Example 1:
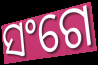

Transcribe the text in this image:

ସଂଗେ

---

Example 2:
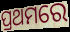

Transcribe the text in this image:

ପ୍ରଥମରେ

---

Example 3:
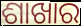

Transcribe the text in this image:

ଶାଖାର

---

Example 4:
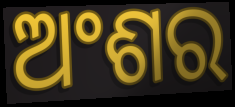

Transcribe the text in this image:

ଅଂଶର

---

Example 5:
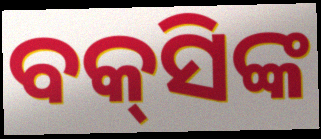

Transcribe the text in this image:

ବକ୍‌ସିଙ୍କ